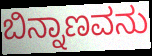
ಬಿನ್ನಾಣವನು